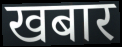
खबार